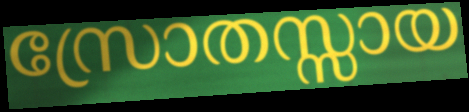
സ്രോതസ്സായ